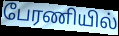
பேரணியில்